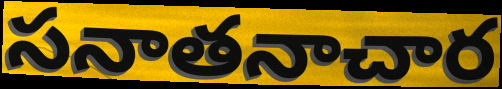
సనాతనాచార